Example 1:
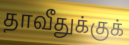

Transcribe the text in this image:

தாவீதுக்குக்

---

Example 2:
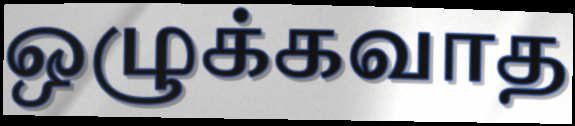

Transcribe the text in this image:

ஒழுக்கவாத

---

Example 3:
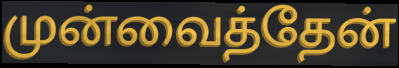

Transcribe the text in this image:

முன்வைத்தேன்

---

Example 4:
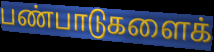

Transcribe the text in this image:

பண்பாடுகளைக்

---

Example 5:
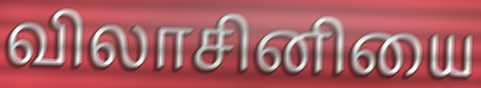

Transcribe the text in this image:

விலாசினியை